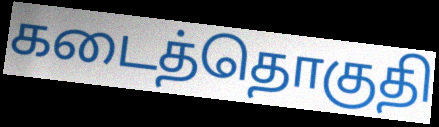
கடைத்தொகுதி